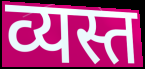
व्यस्त